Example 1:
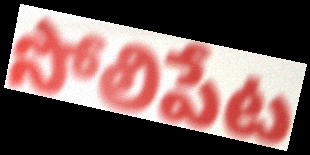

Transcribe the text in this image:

సోలిపేట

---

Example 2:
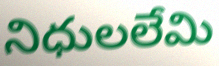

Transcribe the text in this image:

నిధులలేమి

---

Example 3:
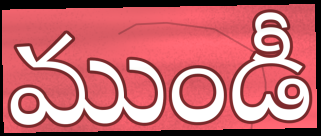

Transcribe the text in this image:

ముండీ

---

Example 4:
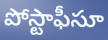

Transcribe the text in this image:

పోస్టాఫీసూ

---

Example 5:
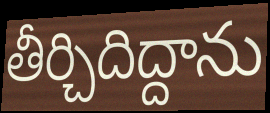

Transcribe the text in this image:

తీర్చిదిద్దాను